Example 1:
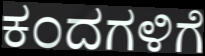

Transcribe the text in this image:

ಕಂದಗಳಿಗೆ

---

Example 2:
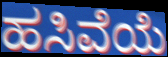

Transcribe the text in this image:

ಹಸಿವೆಯೆ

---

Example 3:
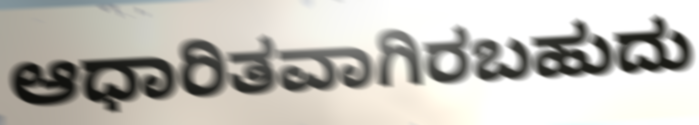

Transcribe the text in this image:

ಆಧಾರಿತವಾಗಿರಬಹುದು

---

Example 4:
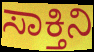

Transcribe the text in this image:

ಸಾಕ್ತಿನಿ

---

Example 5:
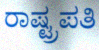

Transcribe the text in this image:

ರಾಷ್ಟ್ರಪತಿ